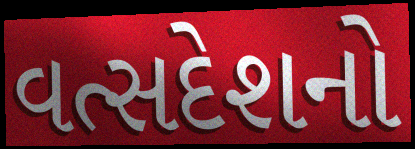
વત્સદેશનો